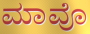
ಮಾವೊ